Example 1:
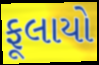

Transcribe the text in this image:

ફૂલાયો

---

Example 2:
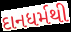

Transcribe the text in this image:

દાનધર્મથી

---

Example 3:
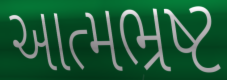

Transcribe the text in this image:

આત્મભ્રષ્ટ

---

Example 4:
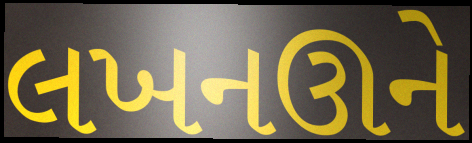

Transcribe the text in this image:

લખનઊને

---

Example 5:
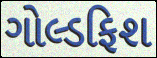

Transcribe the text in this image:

ગોલ્ડફિશ